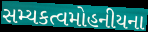
સમ્યકત્વમોહનીયના